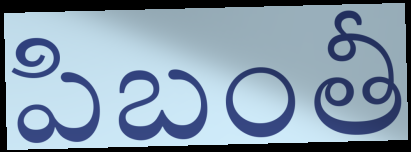
పిబంతీ